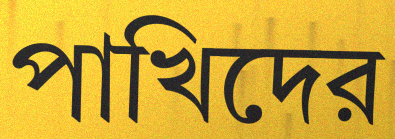
পাখিদের